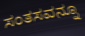
ಸಂತಸವನ್ನೂ